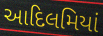
આદિલમિયાં